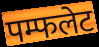
पम्फलेट